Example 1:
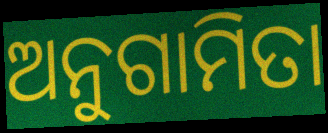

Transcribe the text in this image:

ଅନୁଗାମିତା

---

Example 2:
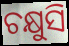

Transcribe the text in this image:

ଚକ୍ଷୁସି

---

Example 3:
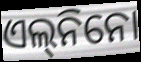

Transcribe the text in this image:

ଏଲ୍‌ନିନୋ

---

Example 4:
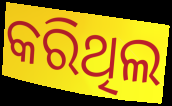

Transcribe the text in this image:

କରିଥିଲ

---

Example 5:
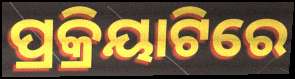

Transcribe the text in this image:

ପ୍ରକ୍ରିୟାଟିରେ